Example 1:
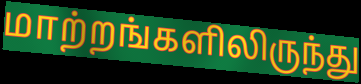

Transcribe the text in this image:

மாற்றங்களிலிருந்து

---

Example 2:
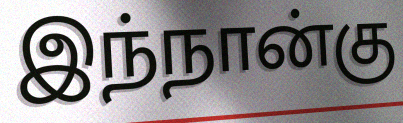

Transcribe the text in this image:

இந்நான்கு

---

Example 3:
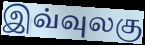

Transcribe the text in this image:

இவ்வுலகு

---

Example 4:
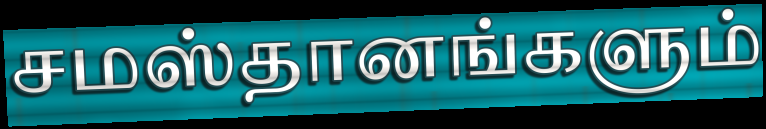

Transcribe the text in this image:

சமஸ்தானங்களும்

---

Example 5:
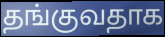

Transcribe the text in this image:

தங்குவதாக